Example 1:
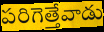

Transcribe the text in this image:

పరిగెత్తేవాడు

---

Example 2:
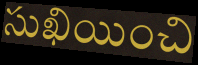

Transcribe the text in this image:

సుఖియించి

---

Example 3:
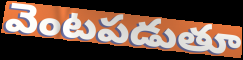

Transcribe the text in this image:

వెంటపడుతూ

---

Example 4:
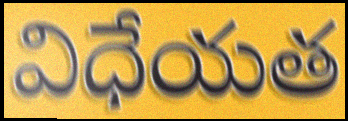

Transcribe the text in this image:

విధేయత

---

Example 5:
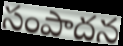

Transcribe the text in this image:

సంపాదన